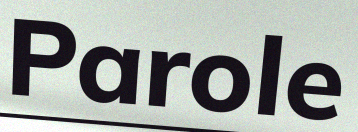
Parole